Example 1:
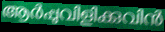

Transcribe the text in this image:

ആർപ്പുവിളിക്കുവിൻ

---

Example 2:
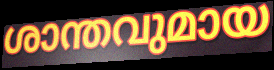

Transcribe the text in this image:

ശാന്തവുമായ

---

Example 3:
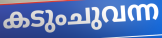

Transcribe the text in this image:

കടുംചുവന്ന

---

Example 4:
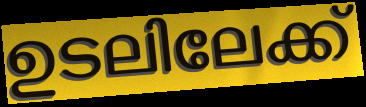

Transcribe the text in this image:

ഉടലിലേക്ക്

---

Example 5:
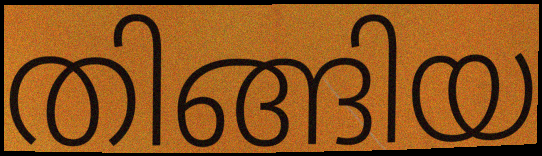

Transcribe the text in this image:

തിങ്ങിയ